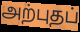
அற்புதப்